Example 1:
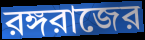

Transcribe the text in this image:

রঙ্গরাজের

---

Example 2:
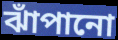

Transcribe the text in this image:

ঝাঁপানো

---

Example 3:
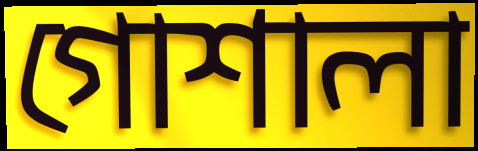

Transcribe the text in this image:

গোশালা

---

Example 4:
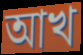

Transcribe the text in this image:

আখ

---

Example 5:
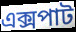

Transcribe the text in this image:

এক্সপাট